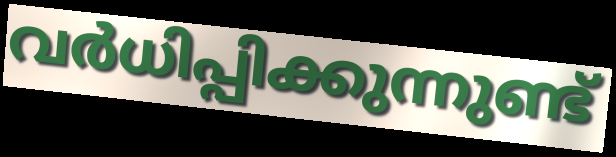
വർധിപ്പിക്കുന്നുണ്ട്